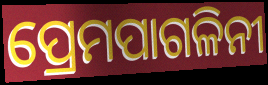
ପ୍ରେମପାଗଳିନୀ